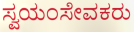
ಸ್ವಯಂಸೇವಕರು